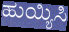
ಹುಯ್ಯಿಸಿ